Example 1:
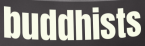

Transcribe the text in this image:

buddhists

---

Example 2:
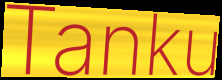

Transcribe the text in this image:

Tanku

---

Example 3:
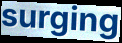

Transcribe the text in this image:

surging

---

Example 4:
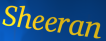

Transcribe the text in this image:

Sheeran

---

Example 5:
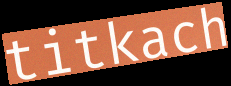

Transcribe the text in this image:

titkach